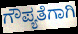
ಗೌಪ್ಯತೆಗಾಗಿ